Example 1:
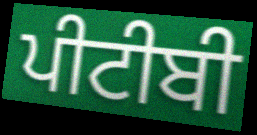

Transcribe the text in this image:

ਪੀਟੀਬੀ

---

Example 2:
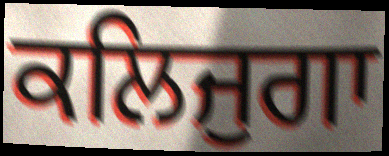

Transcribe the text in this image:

ਕਲਿਜੁਗਾ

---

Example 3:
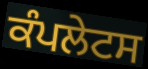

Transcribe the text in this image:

ਕੰਪਲੇਟਸ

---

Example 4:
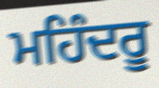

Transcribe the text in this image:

ਮਹਿੰਦਰੂ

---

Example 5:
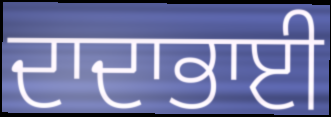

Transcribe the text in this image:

ਦਾਦਾਭਾਈ